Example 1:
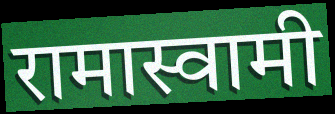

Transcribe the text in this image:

रामास्वामी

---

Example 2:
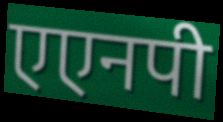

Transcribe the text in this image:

एएनपी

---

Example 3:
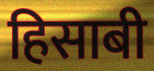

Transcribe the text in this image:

हिसाबी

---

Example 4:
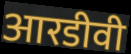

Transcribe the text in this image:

आरडीवी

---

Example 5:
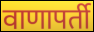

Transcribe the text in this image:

वाणापर्ती